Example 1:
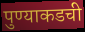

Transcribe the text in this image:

पुण्याकडची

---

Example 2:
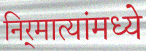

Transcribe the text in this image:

निर्मात्यांमध्ये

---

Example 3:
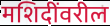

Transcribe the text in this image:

मशिदींवरील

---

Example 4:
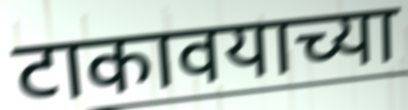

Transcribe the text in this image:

टाकावयाच्या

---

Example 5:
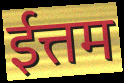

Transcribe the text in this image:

ईत्तम